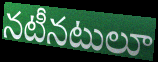
నటీనటులూ